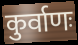
कुर्वाणः